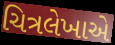
ચિત્રલેખાએ